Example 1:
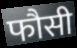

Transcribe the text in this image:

फौसी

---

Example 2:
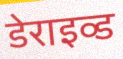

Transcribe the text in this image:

डेराइव्ड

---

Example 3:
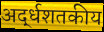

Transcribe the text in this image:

अर्द्धशतकीय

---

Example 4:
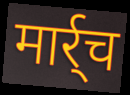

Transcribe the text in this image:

मार्र्च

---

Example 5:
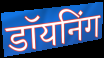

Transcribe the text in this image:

डॉयनिंग